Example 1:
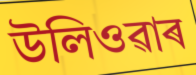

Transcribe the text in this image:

উলিওৱাৰ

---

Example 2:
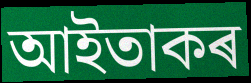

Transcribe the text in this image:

আইতাকৰ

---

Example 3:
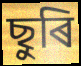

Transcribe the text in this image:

ছুৰি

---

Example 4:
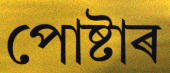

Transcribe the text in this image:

পোষ্টাৰ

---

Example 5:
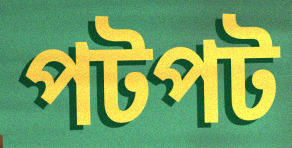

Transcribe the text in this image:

পটপট